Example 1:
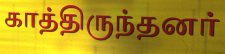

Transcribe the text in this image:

காத்திருந்தனர்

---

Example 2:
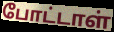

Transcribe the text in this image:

போட்டாள்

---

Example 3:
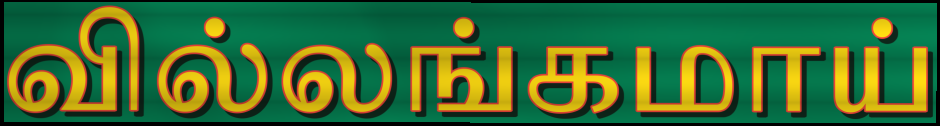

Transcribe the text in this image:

வில்லங்கமாய்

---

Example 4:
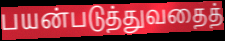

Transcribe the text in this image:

பயன்படுத்துவதைத்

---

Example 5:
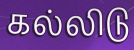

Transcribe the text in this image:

கல்லிடு